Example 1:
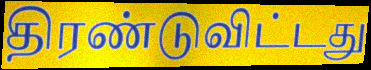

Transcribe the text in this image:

திரண்டுவிட்டது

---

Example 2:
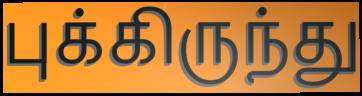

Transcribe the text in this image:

புக்கிருந்து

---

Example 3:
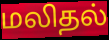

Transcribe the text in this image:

மலிதல்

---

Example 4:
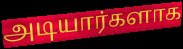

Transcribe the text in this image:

அடியார்களாக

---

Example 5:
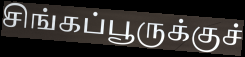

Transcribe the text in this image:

சிங்கப்பூருக்குச்